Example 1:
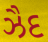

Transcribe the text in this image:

ઝૈદ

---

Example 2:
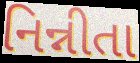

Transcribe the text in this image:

નિન્નીતા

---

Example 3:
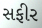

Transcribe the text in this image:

સફીર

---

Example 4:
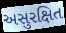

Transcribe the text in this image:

અસુરક્ષિત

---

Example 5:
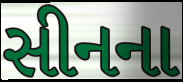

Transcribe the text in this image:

સીનના